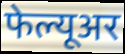
फेल्यूअर